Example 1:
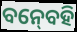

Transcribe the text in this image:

ବନ୍‍ବେହି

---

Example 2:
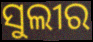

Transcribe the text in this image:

ସୁଲୀର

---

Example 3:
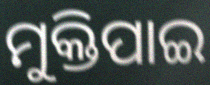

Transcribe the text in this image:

ମୁକ୍ତିପାଇ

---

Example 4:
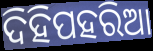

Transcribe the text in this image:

ଦିହିପହରିଆ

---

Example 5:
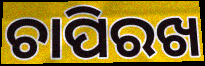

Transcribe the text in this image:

ଚାପିରଖ